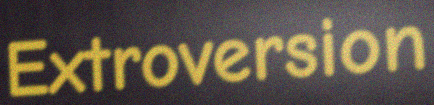
Extroversion